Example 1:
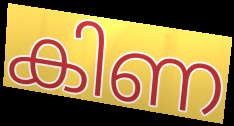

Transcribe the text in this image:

കിണ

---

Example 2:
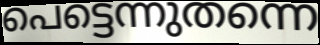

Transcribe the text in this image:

പെട്ടെന്നുതന്നെ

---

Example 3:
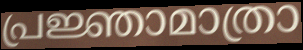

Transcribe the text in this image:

പ്രജ്ഞാമാത്രാ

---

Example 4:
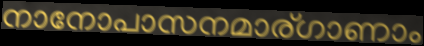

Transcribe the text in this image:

നാനോപാസനമാര്ഗാണാം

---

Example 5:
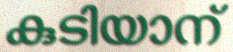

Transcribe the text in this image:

കുടിയാന്